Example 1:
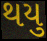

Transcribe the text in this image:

થયુ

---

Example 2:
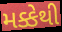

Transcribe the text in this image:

મક્કેથી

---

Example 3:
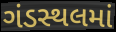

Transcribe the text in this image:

ગંડસ્થલમાં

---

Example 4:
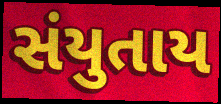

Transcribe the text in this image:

સંયુતાય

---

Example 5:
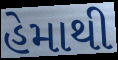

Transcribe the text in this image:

હેમાથી